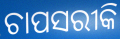
ଚାପସରୀକି